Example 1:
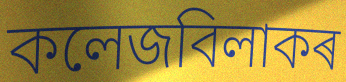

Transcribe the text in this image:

কলেজবিলাকৰ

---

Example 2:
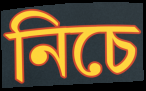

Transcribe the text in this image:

নিচে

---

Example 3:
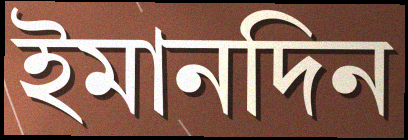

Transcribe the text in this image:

ইমানদিন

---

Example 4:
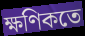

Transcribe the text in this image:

ক্ষণিকতে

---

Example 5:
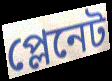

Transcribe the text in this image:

প্লেনেট